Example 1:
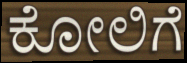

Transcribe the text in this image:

ಕೋಲಿಗೆ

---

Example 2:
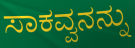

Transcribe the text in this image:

ಸಾಕವ್ವನನ್ನು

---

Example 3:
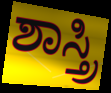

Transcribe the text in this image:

ಶಾಸ್ತ್ರಿ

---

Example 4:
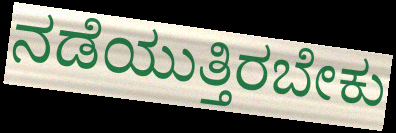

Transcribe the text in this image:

ನಡೆಯುತ್ತಿರಬೇಕು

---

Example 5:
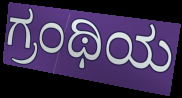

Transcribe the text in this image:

ಗ್ರಂಥಿಯ